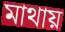
মাথায়